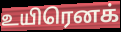
உயிரெனக்